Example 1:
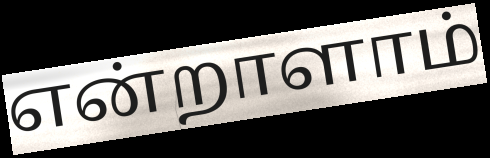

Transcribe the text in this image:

என்றாளாம்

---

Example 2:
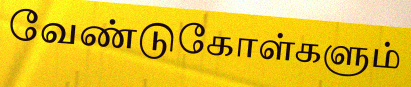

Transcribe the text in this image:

வேண்டுகோள்களும்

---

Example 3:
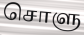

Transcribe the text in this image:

சொளு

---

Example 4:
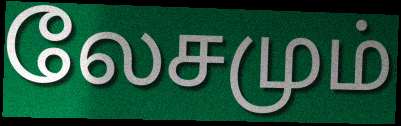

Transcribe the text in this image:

லேசமும்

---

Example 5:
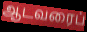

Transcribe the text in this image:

ஆடவரைப்